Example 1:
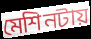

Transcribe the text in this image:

মেশিনটায়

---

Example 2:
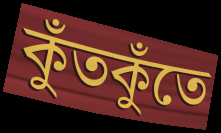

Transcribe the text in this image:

কুঁতকুঁতে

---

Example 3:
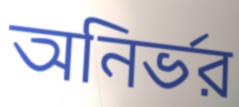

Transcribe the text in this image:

অনির্ভর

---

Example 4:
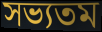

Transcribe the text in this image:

সভ্যতম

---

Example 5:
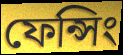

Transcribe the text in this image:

ফেন্সিং